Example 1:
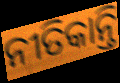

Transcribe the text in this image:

ନୀତିକାନ୍ତି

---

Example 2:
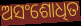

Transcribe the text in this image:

ଅସଂଶୋଧିତ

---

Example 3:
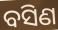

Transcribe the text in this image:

ବସିଣ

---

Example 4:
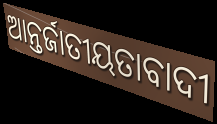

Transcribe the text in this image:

ଆନ୍ତର୍ଜାତୀୟତାବାଦୀ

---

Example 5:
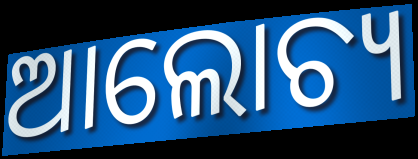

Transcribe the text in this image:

ଆଲୋଚ୍ୟ